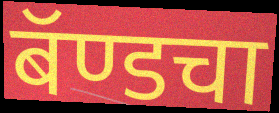
बॅण्डचा